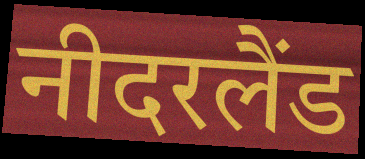
नीदरलैंड